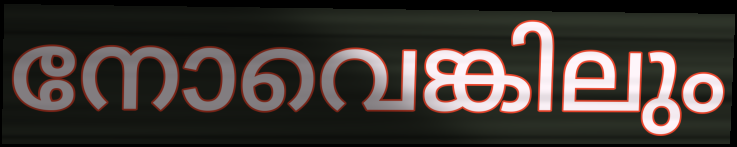
നോവെങ്കിലും